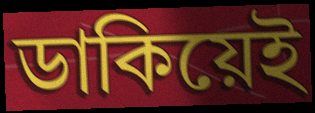
ডাকিয়েই